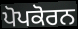
ਪੋਪਕੋਰਨ